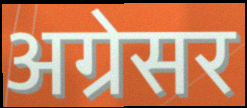
अग्रेसर